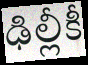
ఢిల్లీకీ